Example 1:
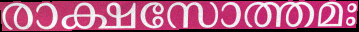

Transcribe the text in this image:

രാക്ഷസോത്തമഃ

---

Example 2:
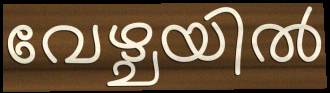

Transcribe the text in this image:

വേഴ്ചയിൽ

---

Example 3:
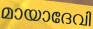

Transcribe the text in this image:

മായാദേവി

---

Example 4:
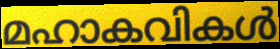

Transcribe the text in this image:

മഹാകവികൾ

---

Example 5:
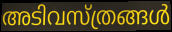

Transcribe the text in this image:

അടിവസ്ത്രങ്ങൾ